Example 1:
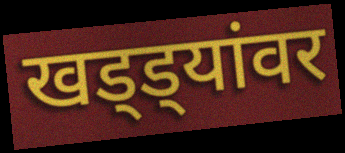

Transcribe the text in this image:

खड्ड्यांवर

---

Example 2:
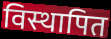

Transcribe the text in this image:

विस्थापित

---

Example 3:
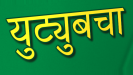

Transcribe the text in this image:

युट्युबचा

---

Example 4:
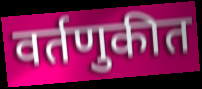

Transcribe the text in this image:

वर्तणुकीत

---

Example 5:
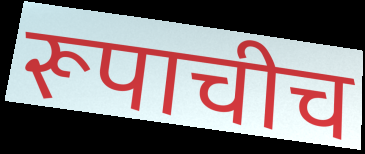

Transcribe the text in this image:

रूपाचीच